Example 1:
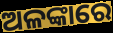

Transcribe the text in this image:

ଅଳଙ୍କାରେ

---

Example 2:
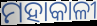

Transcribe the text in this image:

ମହାକାଳୀ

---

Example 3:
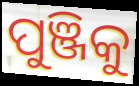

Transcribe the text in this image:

ପୁଞ୍ଜିକୁ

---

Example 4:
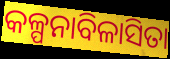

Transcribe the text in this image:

କଳ୍ପନାବିଳାସିତା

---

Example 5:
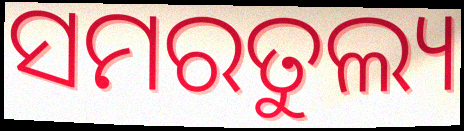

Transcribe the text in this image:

ସମରତୁଲ୍ୟ